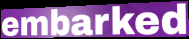
embarked